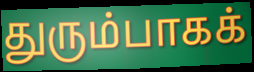
துரும்பாகக்